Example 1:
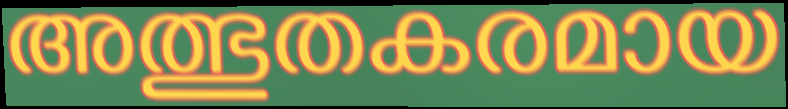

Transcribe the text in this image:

അത്ഭുതകരമായ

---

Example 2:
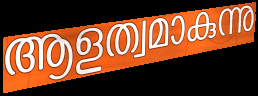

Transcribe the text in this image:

ആളത്വമാകുന്നു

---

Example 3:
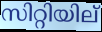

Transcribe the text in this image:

സിറ്റിയില്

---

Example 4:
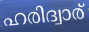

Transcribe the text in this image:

ഹരിദ്വാര്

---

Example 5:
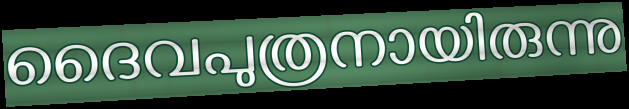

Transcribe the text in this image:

ദൈവപുത്രനായിരുന്നു